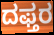
ದಫ್ತರ